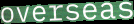
overseas